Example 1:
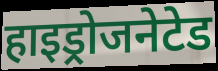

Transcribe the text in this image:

हाइड्रोजनेटेड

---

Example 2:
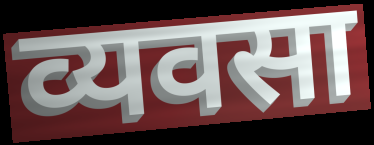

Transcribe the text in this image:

व्यवसा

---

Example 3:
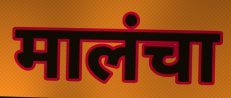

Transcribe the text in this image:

मालंचा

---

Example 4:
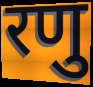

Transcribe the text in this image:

रणु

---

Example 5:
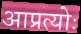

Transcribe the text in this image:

आप्रत्योः